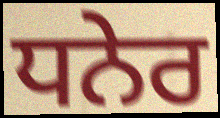
ਧਨੇਰ